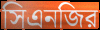
সিএনজির